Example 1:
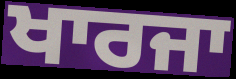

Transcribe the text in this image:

ਖਾਰਜਾ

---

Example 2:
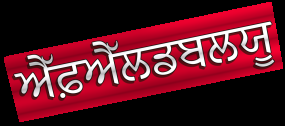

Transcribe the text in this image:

ਐੱਫ਼ਐੱਲਡਬਲਯੂ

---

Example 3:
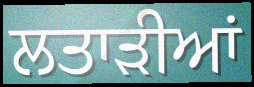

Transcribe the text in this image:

ਲਤਾੜੀਆਂ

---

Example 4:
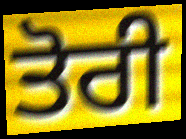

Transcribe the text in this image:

ਤੋਰੀ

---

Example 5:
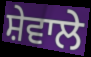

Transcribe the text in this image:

ਸ਼ੇਵਾਲੇ